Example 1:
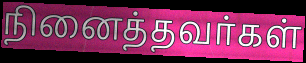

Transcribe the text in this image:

நினைத்தவர்கள்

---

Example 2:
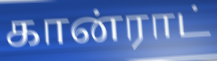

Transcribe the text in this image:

கான்ராட்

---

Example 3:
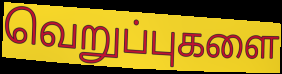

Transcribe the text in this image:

வெறுப்புகளை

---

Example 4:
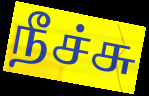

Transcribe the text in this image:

நீச்சு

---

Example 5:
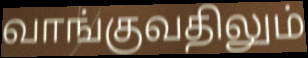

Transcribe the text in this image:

வாங்குவதிலும்